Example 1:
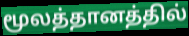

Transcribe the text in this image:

மூலத்தானத்தில்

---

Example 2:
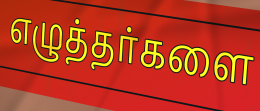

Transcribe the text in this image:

எழுத்தர்களை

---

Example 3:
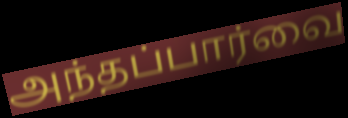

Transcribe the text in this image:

அந்தப்பார்வை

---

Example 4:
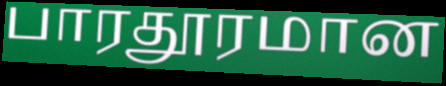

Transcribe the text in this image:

பாரதூரமான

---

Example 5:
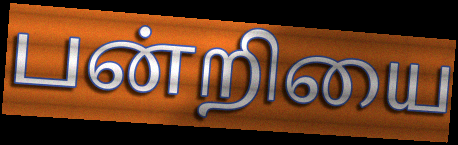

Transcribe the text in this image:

பன்றியை